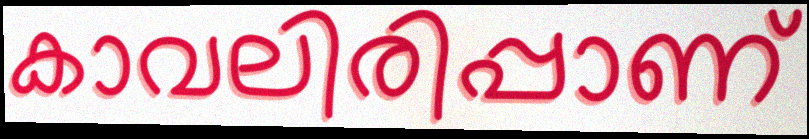
കാവലിരിപ്പാണ്